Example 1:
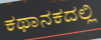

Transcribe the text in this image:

ಕಥಾನಕದಲ್ಲಿ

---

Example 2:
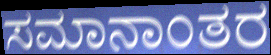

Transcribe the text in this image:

ಸಮಾನಾಂತರ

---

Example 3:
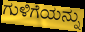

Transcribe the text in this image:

ಗುಳಿಗೆಯನ್ನು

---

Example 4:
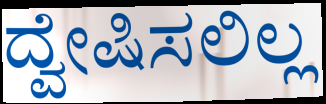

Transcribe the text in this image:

ದ್ವೇಷಿಸಲಿಲ್ಲ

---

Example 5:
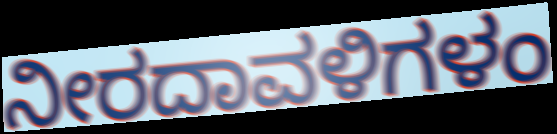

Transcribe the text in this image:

ನೀರದಾವಳಿಗಳಂ